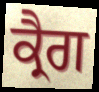
ਕ੍ਰੈਗ